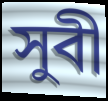
সুবী